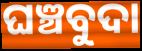
ଘଞ୍ଚବୁଦା